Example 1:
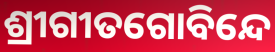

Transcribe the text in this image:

ଶ୍ରୀଗୀତଗୋବିନ୍ଦେ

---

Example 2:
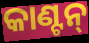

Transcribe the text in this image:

କାଣ୍ଟନ୍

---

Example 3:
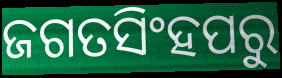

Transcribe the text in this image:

ଜଗତସିଂହପରୁ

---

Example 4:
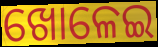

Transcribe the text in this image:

ଖୋଳେଇ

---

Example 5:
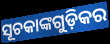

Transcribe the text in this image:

ସୂଚକାଙ୍କଗୁଡ଼ିକର